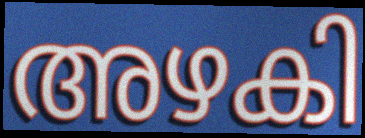
അഴകി